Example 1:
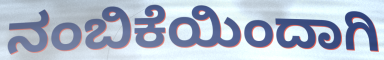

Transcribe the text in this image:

ನಂಬಿಕೆಯಿಂದಾಗಿ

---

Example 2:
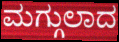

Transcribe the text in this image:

ಮಗ್ಗುಲಾದ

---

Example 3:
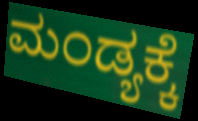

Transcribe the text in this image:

ಮಂಡ್ಯಕ್ಕೆ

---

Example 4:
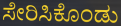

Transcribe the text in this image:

ಸೇರಿಸಿಕೊಂಡು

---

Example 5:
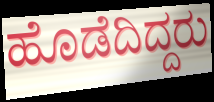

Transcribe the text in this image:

ಹೊಡೆದಿದ್ದರು